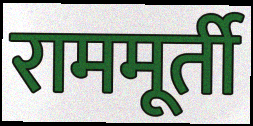
राममूर्ती